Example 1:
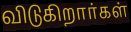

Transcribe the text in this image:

விடுகிறார்கள்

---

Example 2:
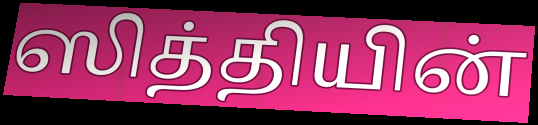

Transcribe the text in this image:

ஸித்தியின்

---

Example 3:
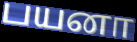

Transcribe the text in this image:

பயனா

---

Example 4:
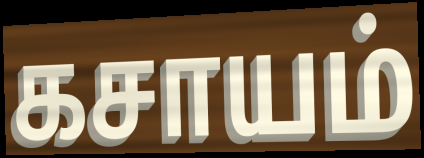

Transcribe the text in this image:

கசாயம்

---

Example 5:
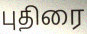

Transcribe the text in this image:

புதிரை